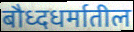
बौध्दधर्मातील